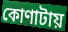
কোণাটায়